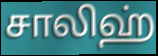
சாலிஹ்